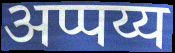
अप्पय्य